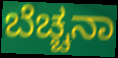
ಬೆಚ್ಚನಾ